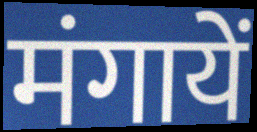
मंगायें